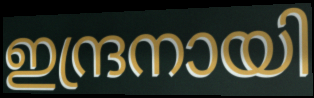
ഇന്ദ്രനായി